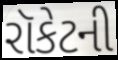
રૉકેટની